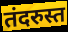
तंदरुस्त